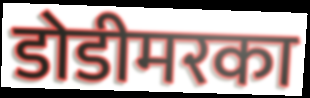
डोडीमरका